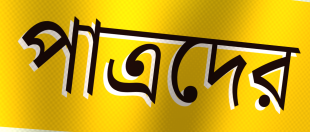
পাত্রদের